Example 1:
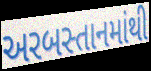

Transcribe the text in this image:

અરબસ્તાનમાંથી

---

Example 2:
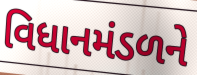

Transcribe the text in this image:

વિધાનમંડળને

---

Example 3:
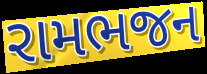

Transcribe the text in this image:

રામભજન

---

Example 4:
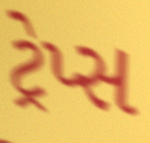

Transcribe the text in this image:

ટ્રેપ્સ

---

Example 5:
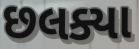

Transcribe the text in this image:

છલક્યા